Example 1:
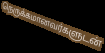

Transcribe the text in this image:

நெருக்கமானவர்களுடன்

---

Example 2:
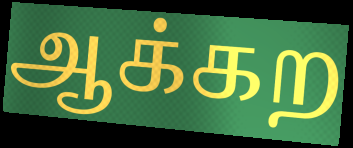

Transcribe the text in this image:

ஆக்கற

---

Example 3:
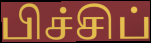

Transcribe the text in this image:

பிச்சிப்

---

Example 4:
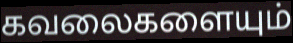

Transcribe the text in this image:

கவலைகளையும்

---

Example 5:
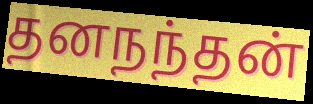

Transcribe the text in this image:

தனநந்தன்